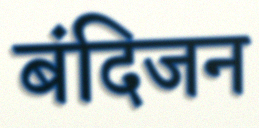
बंदिजन